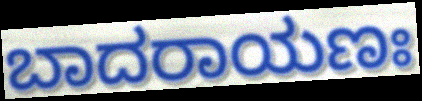
ಬಾದರಾಯಣಃ